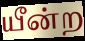
யீன்ற